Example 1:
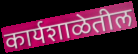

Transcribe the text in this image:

कार्यशाळेतील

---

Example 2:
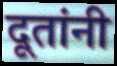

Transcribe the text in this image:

दूतांनी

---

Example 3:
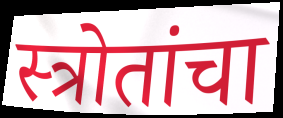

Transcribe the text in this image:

स्त्रोतांचा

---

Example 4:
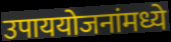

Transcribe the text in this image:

उपाययोजनांमध्ये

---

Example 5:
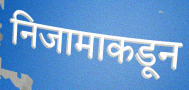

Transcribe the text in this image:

निजामाकडून